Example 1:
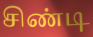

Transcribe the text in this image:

சிண்டி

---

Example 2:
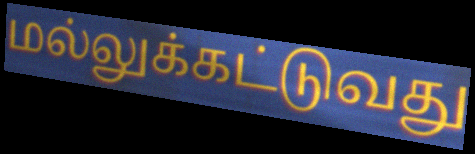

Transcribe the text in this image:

மல்லுக்கட்டுவது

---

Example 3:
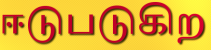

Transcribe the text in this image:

ஈடுபடுகிற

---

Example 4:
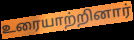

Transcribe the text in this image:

உரையாற்றினார்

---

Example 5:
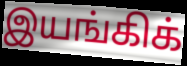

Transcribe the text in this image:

இயங்கிக்